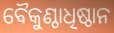
ବୈକୁଣ୍ଠାଧିଷ୍ଠାନ